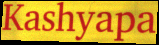
Kashyapa